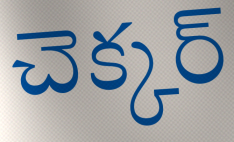
చెక్కర్